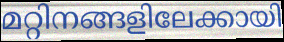
മറ്റിനങ്ങളിലേക്കായി